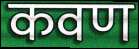
कवण